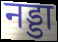
नड्डा